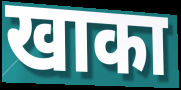
खाका